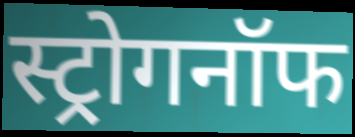
स्ट्रोगनॉफ